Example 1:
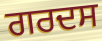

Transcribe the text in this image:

ਗਰਦਸ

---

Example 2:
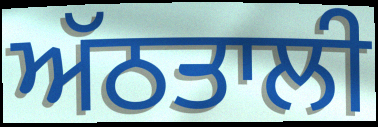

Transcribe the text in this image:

ਅੱਠਤਾਲੀ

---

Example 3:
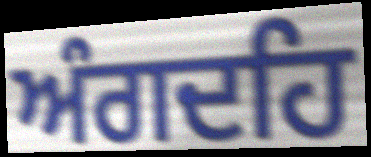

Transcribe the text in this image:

ਅੰਗਦਹਿ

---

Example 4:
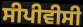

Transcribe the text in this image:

ਸੀਪੀਵੀਸੀ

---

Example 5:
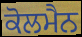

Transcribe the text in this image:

ਕੋਲਮੈਨ